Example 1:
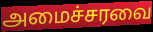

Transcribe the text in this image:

அமைச்சரவை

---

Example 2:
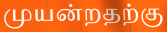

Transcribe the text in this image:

முயன்றதற்கு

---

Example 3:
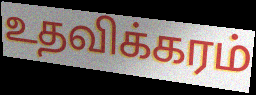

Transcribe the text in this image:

உதவிக்கரம்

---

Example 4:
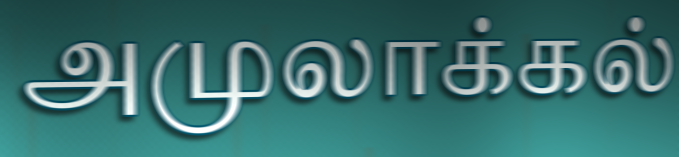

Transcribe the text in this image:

அமுலாக்கல்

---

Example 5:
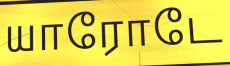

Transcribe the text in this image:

யாரோடே